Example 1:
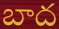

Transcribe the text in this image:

బాద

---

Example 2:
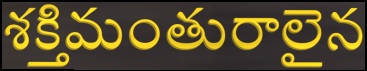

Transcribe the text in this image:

శక్తిమంతురాలైన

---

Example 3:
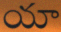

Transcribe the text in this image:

యా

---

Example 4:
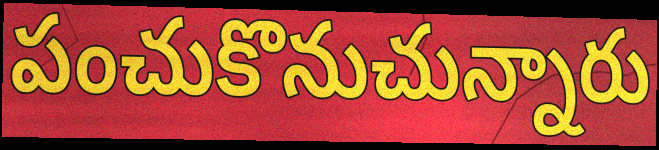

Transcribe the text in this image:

పంచుకొనుచున్నారు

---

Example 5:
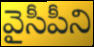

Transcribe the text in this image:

వైసీపీని